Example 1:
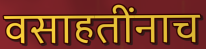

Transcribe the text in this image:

वसाहतींनाच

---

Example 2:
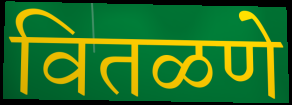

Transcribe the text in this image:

वितळणे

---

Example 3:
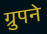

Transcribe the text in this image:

ग्रुपने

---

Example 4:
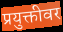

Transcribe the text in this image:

प्रयुक्तीवर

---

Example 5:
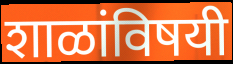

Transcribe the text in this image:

शाळांविषयी